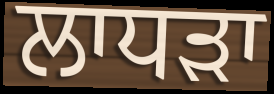
ਲਾਧੜਾ